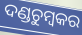
ଦଣ୍ଡଚୁମ୍ବକର